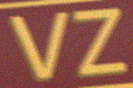
VZ